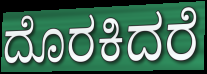
ದೊರಕಿದರೆ